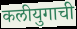
कलीयुगाची